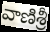
వాణిశ్రీ